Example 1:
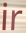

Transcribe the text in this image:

ir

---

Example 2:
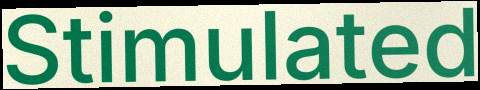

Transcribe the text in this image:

Stimulated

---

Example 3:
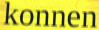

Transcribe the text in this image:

konnen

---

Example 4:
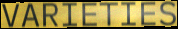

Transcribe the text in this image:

VARIETIES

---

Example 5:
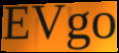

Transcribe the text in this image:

EVgo